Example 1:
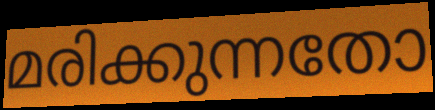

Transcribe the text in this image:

മരിക്കുന്നതോ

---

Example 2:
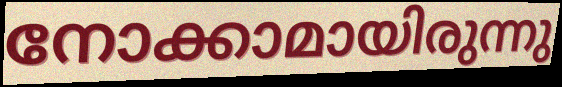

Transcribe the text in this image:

നോക്കാമായിരുന്നു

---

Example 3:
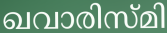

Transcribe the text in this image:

ഖവാരിസ്മി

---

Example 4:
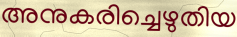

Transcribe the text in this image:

അനുകരിച്ചെഴുതിയ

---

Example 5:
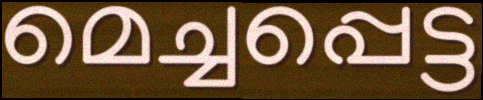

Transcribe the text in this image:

മെച്ചപ്പെട്ട